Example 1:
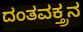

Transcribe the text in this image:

ದಂತವಕ್ತ್ರನ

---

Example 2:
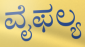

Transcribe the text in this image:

ವೈಫಲ್ಯ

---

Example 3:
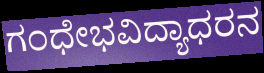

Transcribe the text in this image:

ಗಂಧೇಭವಿದ್ಯಾಧರನ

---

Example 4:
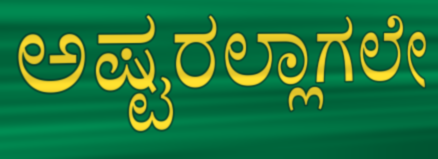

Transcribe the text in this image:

ಅಷ್ಟರಲ್ಲಾಗಲೇ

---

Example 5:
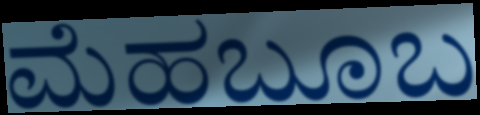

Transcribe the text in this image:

ಮೆಹಬೂಬ